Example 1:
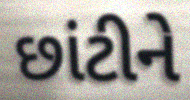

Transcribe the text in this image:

છાંટીને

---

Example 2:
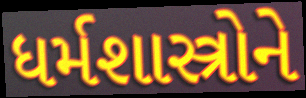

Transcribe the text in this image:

ધર્મશાસ્ત્રોને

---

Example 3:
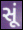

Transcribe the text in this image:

સૂં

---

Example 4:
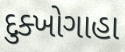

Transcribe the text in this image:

દુક્ખોગાહા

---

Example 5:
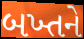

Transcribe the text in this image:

બખ્તને